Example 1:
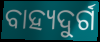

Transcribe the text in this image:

ବାହ୍ୟଦୁର୍ଗ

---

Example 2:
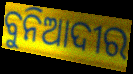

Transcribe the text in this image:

ବୁନିଆଦୀର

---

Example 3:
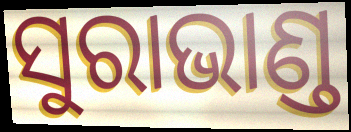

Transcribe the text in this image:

ସୁରାଭାଣ୍ଡ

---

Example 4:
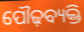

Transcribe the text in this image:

ପୌଢ଼ବ୍ୟକ୍ତି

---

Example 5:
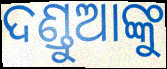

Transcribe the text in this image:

ଦଣ୍ଡୁଆଙ୍କୁ